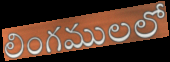
లింగములలో